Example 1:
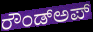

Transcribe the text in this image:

ರೌಂಡ್ಅಪ್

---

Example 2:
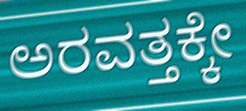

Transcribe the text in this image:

ಅರವತ್ತಕ್ಕೇ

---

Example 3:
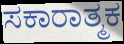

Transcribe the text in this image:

ಸಕಾರಾತ್ಮಕ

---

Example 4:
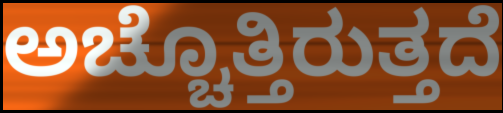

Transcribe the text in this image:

ಅಚ್ಚೊತ್ತಿರುತ್ತದೆ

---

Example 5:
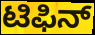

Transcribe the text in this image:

ಟಿಫಿನ್